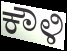
ಕೌಳಿ